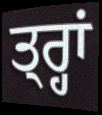
ਤ੍ਰ੍ਹਾਂ